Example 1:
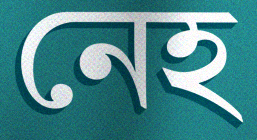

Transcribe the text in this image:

নেহ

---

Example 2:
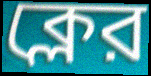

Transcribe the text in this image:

ক্লের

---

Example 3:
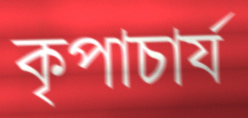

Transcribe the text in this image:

কৃপাচার্য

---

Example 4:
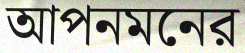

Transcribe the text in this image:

আপনমনের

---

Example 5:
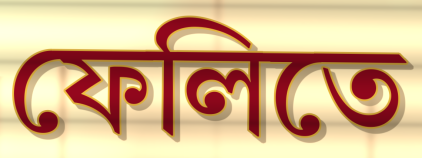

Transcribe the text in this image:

ফেলিতে